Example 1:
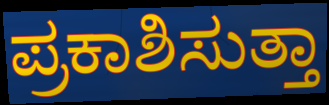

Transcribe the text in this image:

ಪ್ರಕಾಶಿಸುತ್ತಾ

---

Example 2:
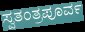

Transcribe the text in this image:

ಸ್ವತಂತ್ರಪೂರ್ವ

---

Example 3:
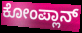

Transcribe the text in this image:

ಕೋಂಪ್ಲಾನ್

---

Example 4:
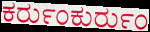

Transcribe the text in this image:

ಕರ್ರುಂಕುರ್ರುಂ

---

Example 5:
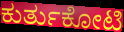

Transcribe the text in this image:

ಕುರ್ತುಕೋಟಿ